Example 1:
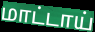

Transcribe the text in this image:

மாட்டாய்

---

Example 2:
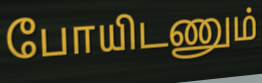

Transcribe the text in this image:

போயிடணும்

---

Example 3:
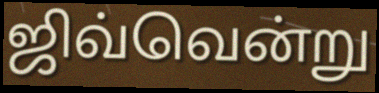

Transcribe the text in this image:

ஜிவ்வென்று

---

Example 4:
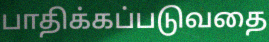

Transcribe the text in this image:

பாதிக்கப்படுவதை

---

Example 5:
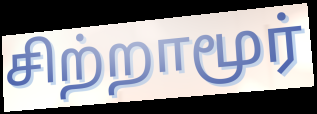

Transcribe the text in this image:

சிற்றாமூர்